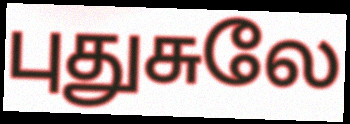
புதுசுலே